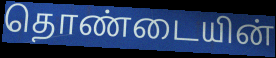
தொண்டையின்